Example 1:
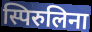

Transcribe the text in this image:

स्पिरुलिना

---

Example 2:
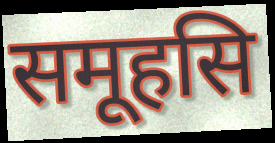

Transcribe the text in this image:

समूहसि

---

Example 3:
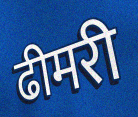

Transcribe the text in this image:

ढीमरी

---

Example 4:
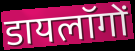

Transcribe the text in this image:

डायलॉगों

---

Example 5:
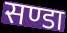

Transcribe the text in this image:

सण्डा